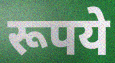
रूपये